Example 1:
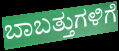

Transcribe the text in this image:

ಬಾಬತ್ತುಗಳಿಗೆ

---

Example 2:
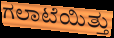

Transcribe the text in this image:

ಗಲಾಟೆಯಿತ್ತು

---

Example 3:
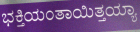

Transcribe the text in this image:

ಭಕ್ತಿಯಂತಾಯಿತ್ತಯ್ಯಾ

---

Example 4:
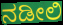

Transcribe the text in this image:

ನಡೀಲಿ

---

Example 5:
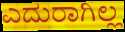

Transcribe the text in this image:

ಎದುರಾಗಿಲ್ಲ